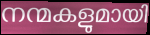
നന്മകളുമായി